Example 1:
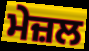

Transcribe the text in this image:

ਮੇਜ਼ਲ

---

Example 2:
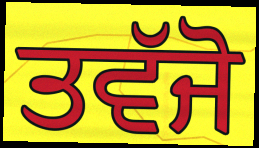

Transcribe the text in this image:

ਤਵੱਜੋ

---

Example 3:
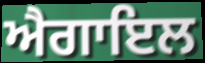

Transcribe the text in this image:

ਐਗਾਇਲ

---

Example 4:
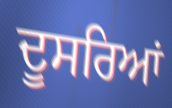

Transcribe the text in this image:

ਦੂਸਰਿਆਂ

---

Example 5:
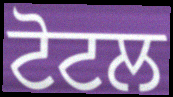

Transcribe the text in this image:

ਟੋਟਲ